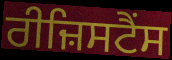
ਰੀਜ਼ਿਸਟੈਂਸ